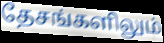
தேசங்களிலும்